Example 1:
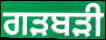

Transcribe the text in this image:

ਗੜਬੜੀ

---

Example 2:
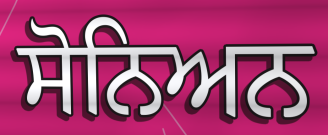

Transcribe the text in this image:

ਸੋਨਿਅਨ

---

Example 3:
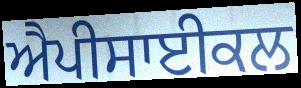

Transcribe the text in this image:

ਐਪੀਸਾਈਕਲ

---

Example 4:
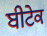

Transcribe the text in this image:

ਬੀਟੇਕ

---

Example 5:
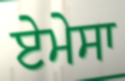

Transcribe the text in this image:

ਏਮੇਸਾ